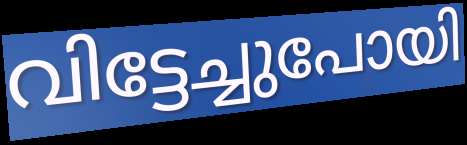
വിട്ടേച്ചുപോയി